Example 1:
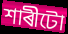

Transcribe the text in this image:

শাৰীটো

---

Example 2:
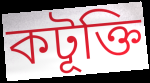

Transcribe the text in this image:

কটূক্তি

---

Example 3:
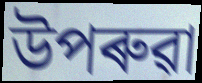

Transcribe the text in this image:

উপৰুৱা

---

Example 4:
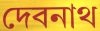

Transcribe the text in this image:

দেবনাথ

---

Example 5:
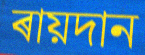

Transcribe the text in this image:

ৰায়দান